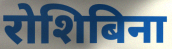
रोशिबिना